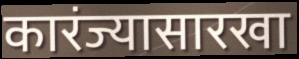
कारंज्यासारखा